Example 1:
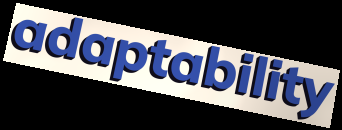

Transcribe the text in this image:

adaptability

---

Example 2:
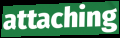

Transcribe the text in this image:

attaching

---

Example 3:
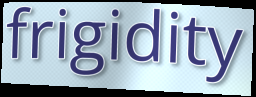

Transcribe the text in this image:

frigidity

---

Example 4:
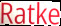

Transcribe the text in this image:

Ratke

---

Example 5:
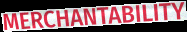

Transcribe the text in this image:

MERCHANTABILITY